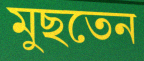
মুছতেন